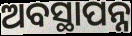
ଅବସ୍ଥାପନ୍ନ